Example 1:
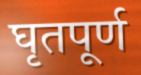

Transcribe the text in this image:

घृतपूर्ण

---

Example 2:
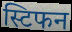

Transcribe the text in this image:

स्टिफन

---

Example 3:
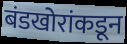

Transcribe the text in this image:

बंडखोरांकडून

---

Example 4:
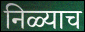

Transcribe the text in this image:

निळ्याच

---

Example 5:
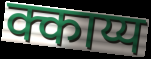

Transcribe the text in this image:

क्काय्य